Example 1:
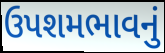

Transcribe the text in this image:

ઉપશમભાવનું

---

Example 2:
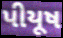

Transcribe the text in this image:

પીયૂષ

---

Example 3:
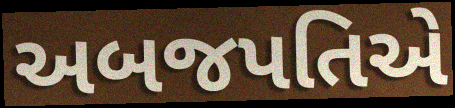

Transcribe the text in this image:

અબજપતિએ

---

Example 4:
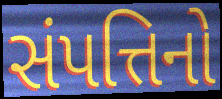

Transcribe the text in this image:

સંપત્તિનો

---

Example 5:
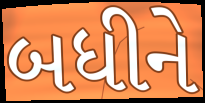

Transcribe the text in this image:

બધીને